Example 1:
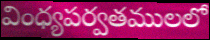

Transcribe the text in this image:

వింధ్యపర్వతములలో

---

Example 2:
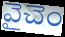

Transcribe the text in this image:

వైచెం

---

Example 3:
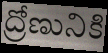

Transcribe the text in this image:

ద్రోణునికి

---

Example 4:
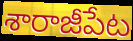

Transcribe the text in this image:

శారాజీపేట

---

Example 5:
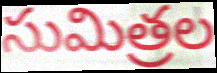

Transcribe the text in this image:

సుమిత్రల